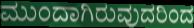
ಮುಂದಾಗಿರುವುದರಿಂದ